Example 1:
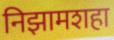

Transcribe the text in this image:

निझामशहा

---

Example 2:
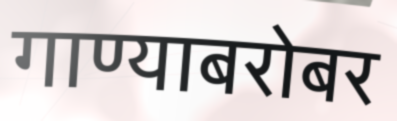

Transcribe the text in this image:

गाण्याबरोबर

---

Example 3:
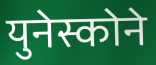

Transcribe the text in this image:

युनेस्कोने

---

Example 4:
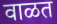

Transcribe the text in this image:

वाळत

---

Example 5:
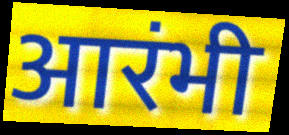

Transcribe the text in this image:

आरंभी